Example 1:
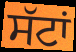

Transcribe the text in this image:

ਸੱਟਾਂ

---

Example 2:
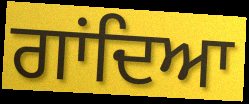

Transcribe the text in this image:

ਗਾਂਦਿਆ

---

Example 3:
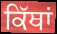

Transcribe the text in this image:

ਕਿੱਥਾਂ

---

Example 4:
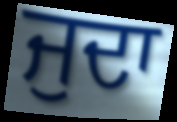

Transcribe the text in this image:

ਜੁਦਾ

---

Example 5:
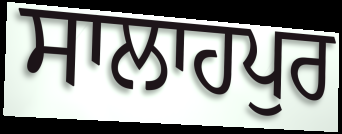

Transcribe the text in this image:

ਸਾਲਾਹਪੁਰ